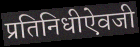
प्रतिनिधीऐवजी